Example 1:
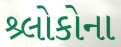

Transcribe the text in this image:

શ્ર્લોકોના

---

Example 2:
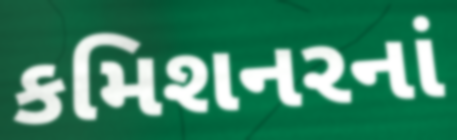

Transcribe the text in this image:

કમિશનરનાં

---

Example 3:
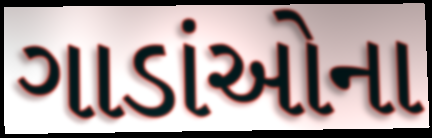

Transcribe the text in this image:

ગાડાંઓના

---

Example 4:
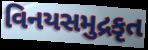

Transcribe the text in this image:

વિનયસમુદ્રકૃત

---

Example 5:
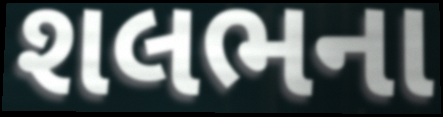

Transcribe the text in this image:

શલભના